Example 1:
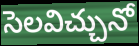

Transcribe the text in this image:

సెలవిచ్చునో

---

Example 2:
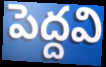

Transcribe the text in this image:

పెద్దవి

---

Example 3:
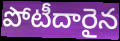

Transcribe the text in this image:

పోటీదారైన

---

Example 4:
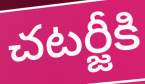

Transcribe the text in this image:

చటర్జీకి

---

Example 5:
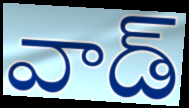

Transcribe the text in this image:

వాడ్